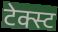
टेक्स्ट